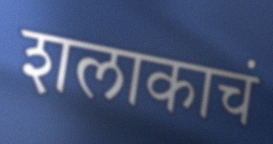
शलाकाचं